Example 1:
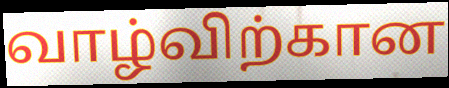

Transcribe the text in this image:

வாழ்விற்கான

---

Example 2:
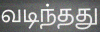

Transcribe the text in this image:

வடிந்தது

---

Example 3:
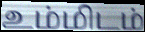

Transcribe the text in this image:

உம்மிடம்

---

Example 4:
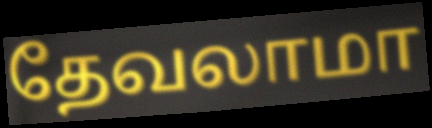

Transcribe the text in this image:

தேவலாமா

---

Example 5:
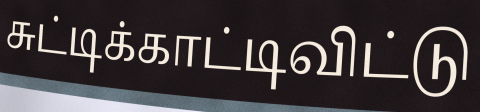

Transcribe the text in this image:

சுட்டிக்காட்டிவிட்டு